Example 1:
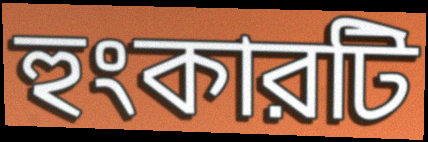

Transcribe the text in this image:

হুংকারটি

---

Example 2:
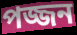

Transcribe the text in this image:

পজ্জন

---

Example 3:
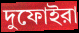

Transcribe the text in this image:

দুফোইরা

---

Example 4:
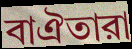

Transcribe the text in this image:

বাঐতারা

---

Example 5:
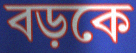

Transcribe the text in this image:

বড়কে